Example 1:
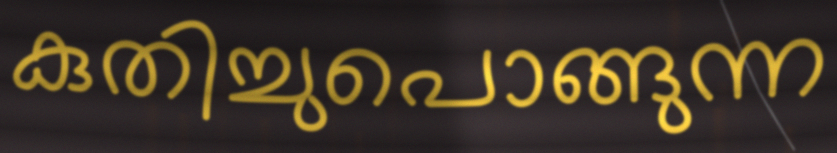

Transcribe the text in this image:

കുതിച്ചുപൊങ്ങുന്ന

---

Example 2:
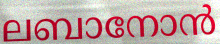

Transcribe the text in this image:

ലബാനോൻ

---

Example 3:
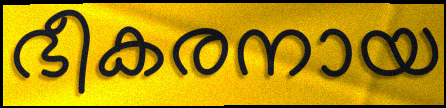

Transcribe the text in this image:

ഭീകരനായ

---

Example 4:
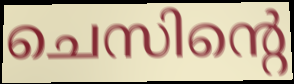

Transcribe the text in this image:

ചെസിന്റെ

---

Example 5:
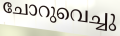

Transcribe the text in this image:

ചോറുവെച്ചു